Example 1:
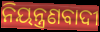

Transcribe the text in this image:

ନିୟନ୍ତ୍ରଣବାଦୀ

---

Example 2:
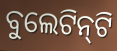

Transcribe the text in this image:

ବୁଲେଟିନ୍‍ଟି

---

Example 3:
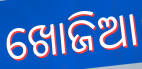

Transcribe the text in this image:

ଖୋଜିଆ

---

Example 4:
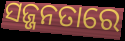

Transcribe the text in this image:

ସଜ୍ଜନତାରେ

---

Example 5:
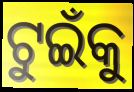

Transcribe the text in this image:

ଟୁଇଁକୁ